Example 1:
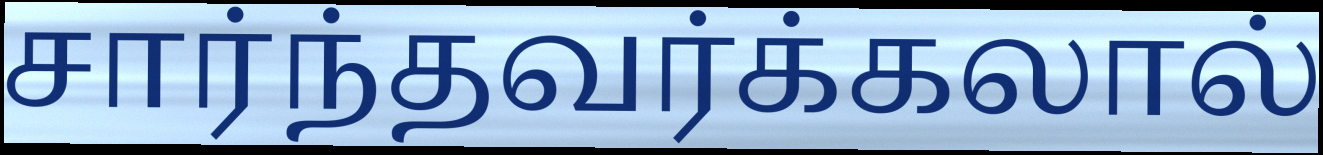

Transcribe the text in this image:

சார்ந்தவர்க்கலால்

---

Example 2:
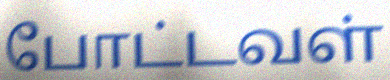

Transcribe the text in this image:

போட்டவள்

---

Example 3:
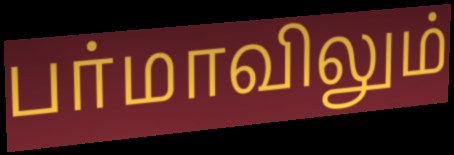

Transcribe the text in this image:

பர்மாவிலும்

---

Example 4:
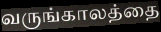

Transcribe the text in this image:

வருங்காலத்தை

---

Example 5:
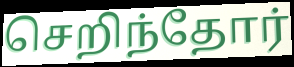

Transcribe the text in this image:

செறிந்தோர்